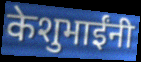
केशुभाईंनी